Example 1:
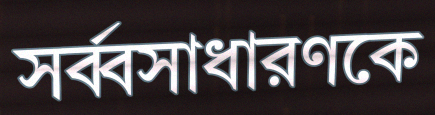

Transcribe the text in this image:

সর্ব্বসাধারণকে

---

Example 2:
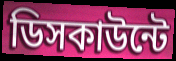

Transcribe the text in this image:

ডিসকাউন্টে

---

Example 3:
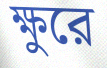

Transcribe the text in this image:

ক্ষুরে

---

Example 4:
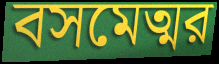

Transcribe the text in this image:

বসমেত্মর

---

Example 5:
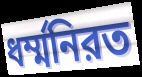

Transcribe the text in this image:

ধর্ম্মনিরত